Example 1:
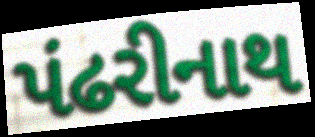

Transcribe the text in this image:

પંઢરીનાથ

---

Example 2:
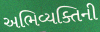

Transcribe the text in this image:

અભિવ્યક્તિની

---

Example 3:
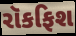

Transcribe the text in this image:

રૉકફિશ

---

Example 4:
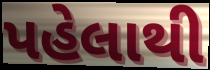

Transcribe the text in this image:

પહેલાથી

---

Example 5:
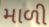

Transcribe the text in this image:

માળી